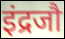
इंद्रजौ